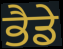
ਭੈਡੇ